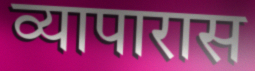
व्यापारास